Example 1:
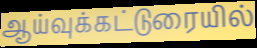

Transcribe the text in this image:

ஆய்வுக்கட்டுரையில்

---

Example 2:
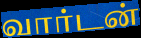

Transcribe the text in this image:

வார்டன்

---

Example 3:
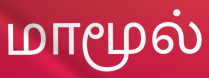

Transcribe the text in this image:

மாமூல்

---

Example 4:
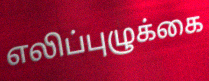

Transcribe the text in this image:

எலிப்புழுக்கை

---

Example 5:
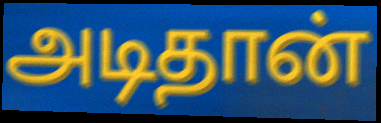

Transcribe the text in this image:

அடிதான்